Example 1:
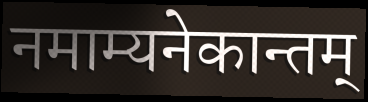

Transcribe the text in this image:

नमाम्यनेकान्तम्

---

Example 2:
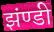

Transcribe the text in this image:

झंण्डी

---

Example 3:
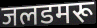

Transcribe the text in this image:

जलडमरू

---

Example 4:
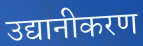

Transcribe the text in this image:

उद्यानीकरण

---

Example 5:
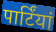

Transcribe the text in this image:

पार्टिंयां